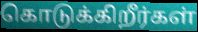
கொடுக்கிறீர்கள்